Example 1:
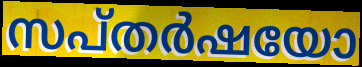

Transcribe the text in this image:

സപ്തർഷയോ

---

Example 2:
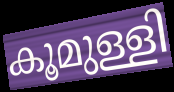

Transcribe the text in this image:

കൂമുള്ളി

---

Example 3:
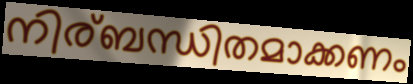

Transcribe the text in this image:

നിര്ബന്ധിതമാക്കണം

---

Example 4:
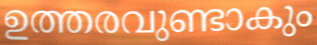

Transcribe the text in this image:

ഉത്തരവുണ്ടാകും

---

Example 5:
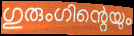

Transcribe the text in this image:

ഗുരുംഗിന്റെയും